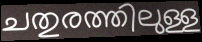
ചതുരത്തിലുള്ള